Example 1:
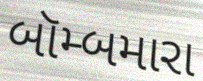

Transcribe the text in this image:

બૉમ્બમારા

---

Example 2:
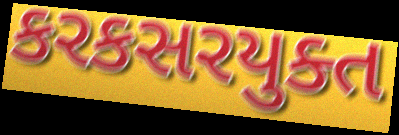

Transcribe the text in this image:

કરકસરયુક્ત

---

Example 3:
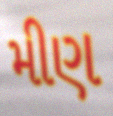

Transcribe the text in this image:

મીણ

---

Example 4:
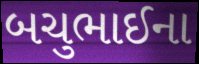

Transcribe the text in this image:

બચુભાઈના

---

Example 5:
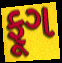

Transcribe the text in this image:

ફૂગ